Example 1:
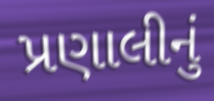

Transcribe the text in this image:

પ્રણાલીનું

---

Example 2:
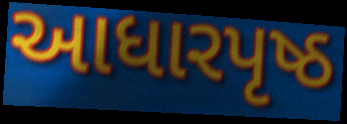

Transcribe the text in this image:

આધારપૃષ્ઠ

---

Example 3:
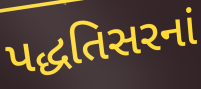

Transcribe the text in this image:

પદ્ધતિસરનાં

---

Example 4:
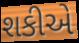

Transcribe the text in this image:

શકીએ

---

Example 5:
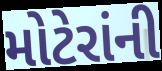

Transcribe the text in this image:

મોટેરાંની